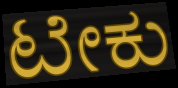
ಟೇಕು